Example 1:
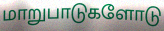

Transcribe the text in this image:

மாறுபாடுகளோடு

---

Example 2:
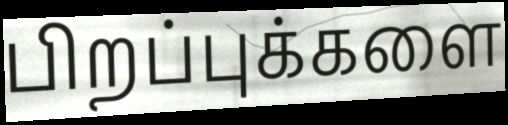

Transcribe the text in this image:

பிறப்புக்களை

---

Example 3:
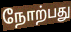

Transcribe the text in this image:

நோற்பது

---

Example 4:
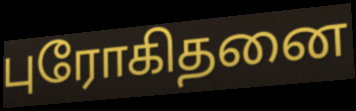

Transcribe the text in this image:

புரோகிதனை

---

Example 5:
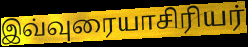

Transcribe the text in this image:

இவ்வுரையாசிரியர்